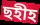
ছহীহ